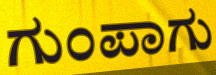
ಗುಂಪಾಗು